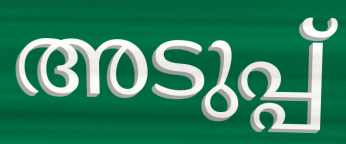
അടുപ്പ്